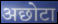
अछोटा